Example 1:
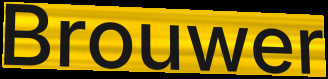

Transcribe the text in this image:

Brouwer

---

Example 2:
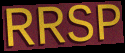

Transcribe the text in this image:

RRSP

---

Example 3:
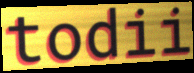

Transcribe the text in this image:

todii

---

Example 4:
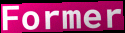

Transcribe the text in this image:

Former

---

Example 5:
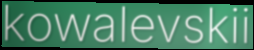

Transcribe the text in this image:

kowalevskii